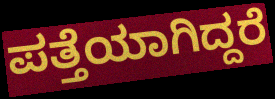
ಪತ್ತೆಯಾಗಿದ್ದರೆ